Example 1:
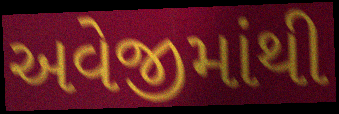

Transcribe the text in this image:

અવેજીમાંથી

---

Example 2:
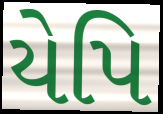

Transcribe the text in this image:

યેપિ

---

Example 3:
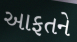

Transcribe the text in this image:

આફતને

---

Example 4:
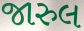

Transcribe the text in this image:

જારુલ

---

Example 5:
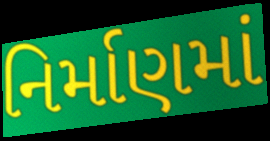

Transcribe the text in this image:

નિર્માણમાં